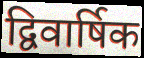
द्विवार्षिक